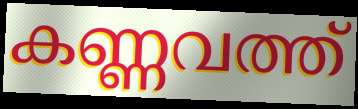
കണ്ണവത്ത്